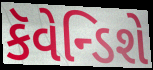
કૅવેન્ડિશે